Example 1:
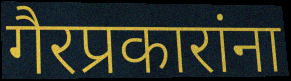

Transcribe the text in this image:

गैरप्रकारांना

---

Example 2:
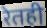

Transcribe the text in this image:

रेतही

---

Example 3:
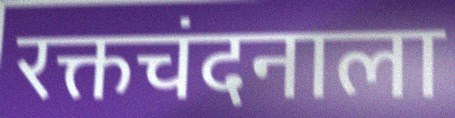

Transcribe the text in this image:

रक्तचंदनाला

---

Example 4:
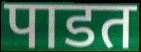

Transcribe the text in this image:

पाडत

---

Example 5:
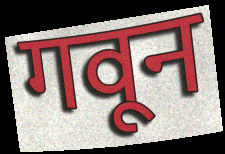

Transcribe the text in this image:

गवून